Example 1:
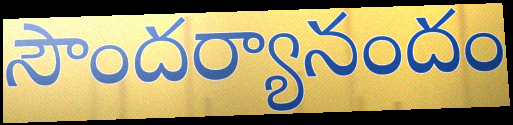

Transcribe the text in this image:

సౌందర్యానందం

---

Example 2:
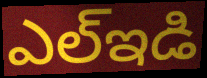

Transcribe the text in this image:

ఎల్ఇడి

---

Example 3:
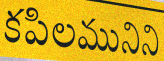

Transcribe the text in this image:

కపిలమునిని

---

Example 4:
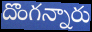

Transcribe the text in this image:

దొంగన్నారు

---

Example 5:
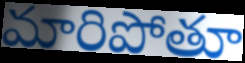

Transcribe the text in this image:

మారిపోతూ